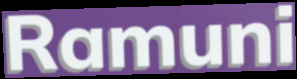
Ramuni